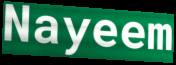
Nayeem